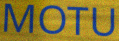
MOTU